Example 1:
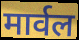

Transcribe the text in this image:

मार्वल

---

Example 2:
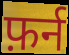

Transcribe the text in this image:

फ़र्न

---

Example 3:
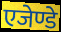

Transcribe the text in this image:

एजेण्डे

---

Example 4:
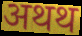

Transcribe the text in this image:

अथथ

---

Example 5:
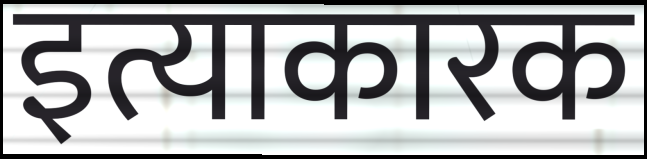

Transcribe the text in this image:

इत्याकारक